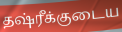
தஷ்ரீக்குடைய